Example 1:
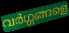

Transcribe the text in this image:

വർഗ്ഗങ്ങളെ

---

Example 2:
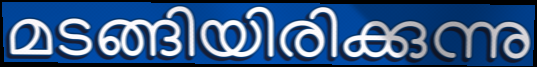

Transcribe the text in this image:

മടങ്ങിയിരിക്കുന്നു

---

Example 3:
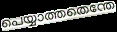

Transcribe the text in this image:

പെയ്യാത്തതെന്തേ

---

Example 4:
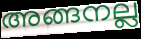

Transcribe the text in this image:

അങ്ങനല്ല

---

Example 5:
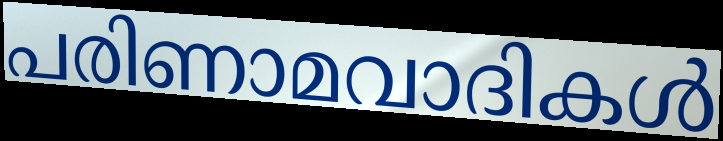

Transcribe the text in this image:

പരിണാമവാദികൾ